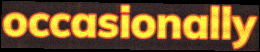
occasionally